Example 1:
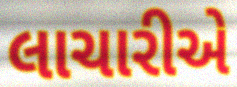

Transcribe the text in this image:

લાચારીએ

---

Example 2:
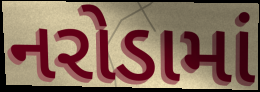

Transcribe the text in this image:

નરોડામાં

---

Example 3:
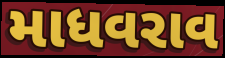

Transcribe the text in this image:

માધવરાવ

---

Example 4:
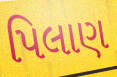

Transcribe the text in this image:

પિલાણ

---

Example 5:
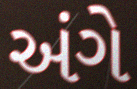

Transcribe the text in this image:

અંગે